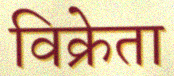
विक्रेता